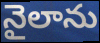
నైలాను